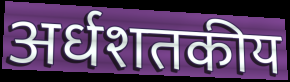
अर्धशतकीय